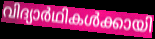
വിദ്യാർഥികൾക്കായി